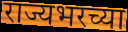
राज्यभरच्या